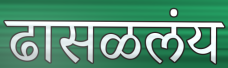
ढासळलंय